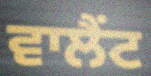
ਵਾਲੈਂਟ